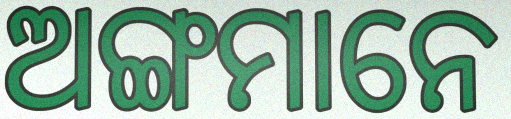
ଅଙ୍ଗମାନେ